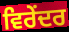
ਵਿਰੇਂਦਰ